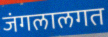
जंगलालगत